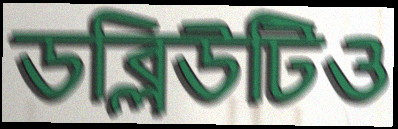
ডব্লিউটিও